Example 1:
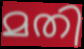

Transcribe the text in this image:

മതി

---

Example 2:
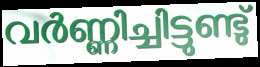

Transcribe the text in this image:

വർണ്ണിച്ചിട്ടുണ്ടു്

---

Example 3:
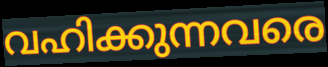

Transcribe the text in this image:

വഹിക്കുന്നവരെ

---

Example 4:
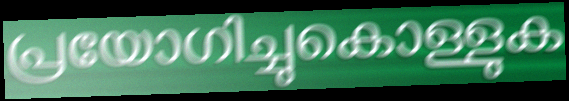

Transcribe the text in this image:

പ്രയോഗിച്ചുകൊള്ളുക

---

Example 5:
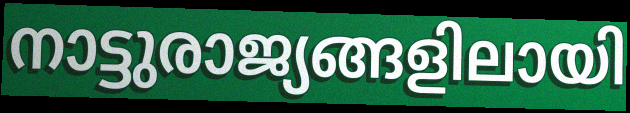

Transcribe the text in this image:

നാട്ടുരാജ്യങ്ങളിലായി